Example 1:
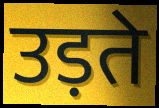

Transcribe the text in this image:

उड़ते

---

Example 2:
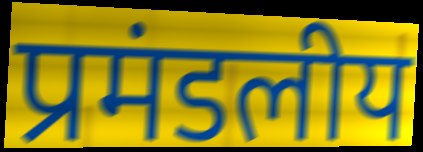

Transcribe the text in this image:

प्रमंडलीय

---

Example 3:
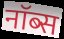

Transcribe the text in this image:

नॉब्स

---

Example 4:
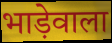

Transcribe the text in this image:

भाड़ेवाला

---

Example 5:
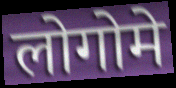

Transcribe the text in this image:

लोगोमे